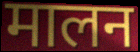
मालन